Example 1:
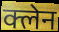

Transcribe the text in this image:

क्लेन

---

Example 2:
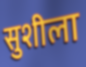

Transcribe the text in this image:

सुशीला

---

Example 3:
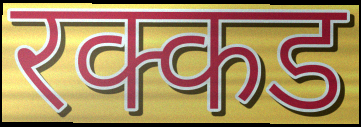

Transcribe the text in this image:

रक्कड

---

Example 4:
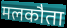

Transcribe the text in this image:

मलकौता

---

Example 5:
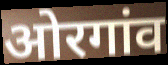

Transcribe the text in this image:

ओरगांव